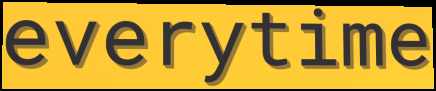
everytime